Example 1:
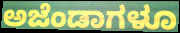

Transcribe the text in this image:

ಅಜೆಂಡಾಗಳೂ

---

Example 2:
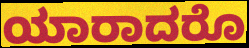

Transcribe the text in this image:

ಯಾರಾದರೊ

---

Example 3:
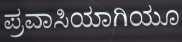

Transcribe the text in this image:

ಪ್ರವಾಸಿಯಾಗಿಯೂ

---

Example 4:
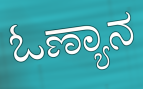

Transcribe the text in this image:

ಓಣ್ಯಾನ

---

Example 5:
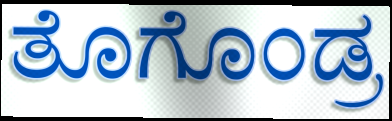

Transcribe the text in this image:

ತೊಗೊಂಡ್ರ